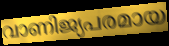
വാണിജ്യപരമായ